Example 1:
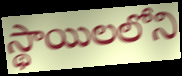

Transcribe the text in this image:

స్థాయిలలోని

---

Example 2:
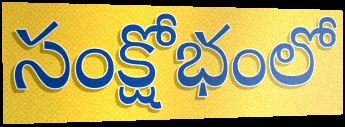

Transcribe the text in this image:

సంక్షోభంలో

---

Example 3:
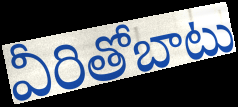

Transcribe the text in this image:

వీరితోబాటు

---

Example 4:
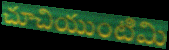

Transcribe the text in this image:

చూచియుంటిమి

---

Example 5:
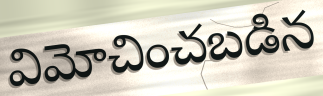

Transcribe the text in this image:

విమోచించబడిన